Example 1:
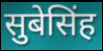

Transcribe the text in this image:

सुबेसिंह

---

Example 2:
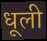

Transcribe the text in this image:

धूली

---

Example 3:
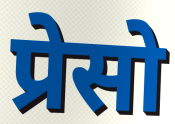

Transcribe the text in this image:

प्रेसो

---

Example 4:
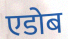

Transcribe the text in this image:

एडोब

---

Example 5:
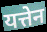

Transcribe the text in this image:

यत्तेन